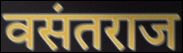
वसंतराज